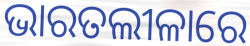
ଭାରତଲୀଳାରେ